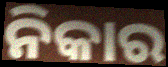
ନିକାର